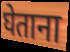
घेताना